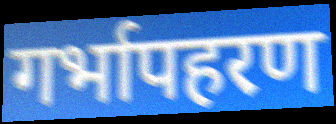
गर्भापहरण